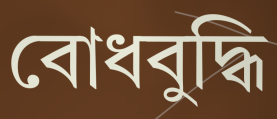
বোধবুদ্ধি